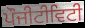
ਪੌਜੀਟੀਵਿਟੀ